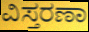
ವಿಸ್ತರಣಾ